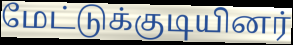
மேட்டுக்குடியினர்